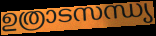
ഉത്രാടസന്ധ്യ